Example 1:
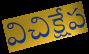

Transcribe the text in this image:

విచిక్షేప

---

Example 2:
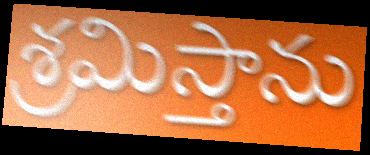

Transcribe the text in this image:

శ్రమిస్తాను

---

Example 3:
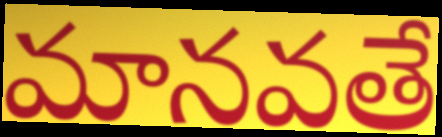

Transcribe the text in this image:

మానవతే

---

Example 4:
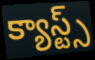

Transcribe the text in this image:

క్యాస్ట్స్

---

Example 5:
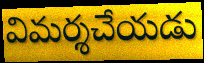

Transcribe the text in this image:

విమర్శచేయడు